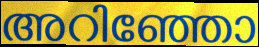
അറിഞ്ഞോ